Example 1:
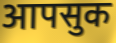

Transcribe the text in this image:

आपसुक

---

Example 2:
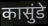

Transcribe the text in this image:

कासुंडे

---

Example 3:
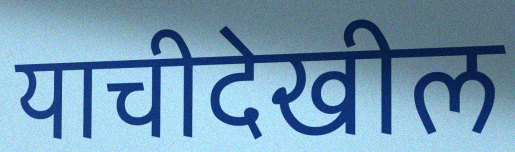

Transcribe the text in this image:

याचीदेखील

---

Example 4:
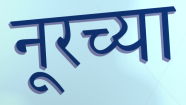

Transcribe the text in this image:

नूरच्या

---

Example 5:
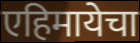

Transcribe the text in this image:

एहिमायेचा